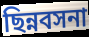
ছিন্নবসনা